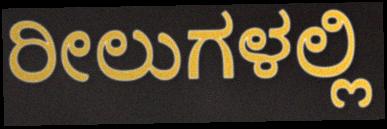
ರೀಲುಗಳಲ್ಲಿ